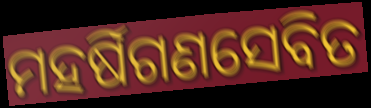
ମହର୍ଷିଗଣସେବିତ